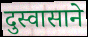
दुस्वासाने